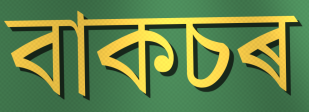
বাকচৰ